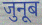
जुनूब